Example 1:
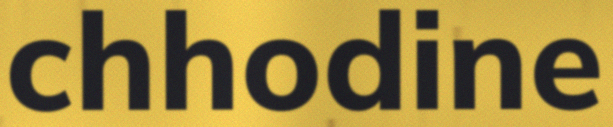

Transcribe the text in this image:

chhodine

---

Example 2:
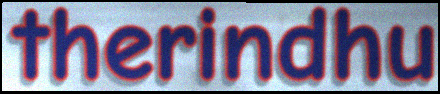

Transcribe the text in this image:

therindhu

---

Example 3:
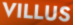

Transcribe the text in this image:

VILLUS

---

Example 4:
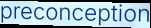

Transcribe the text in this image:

preconception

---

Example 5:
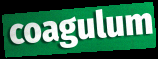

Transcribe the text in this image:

coagulum